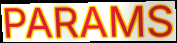
PARAMS